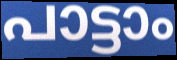
പാട്ടാം